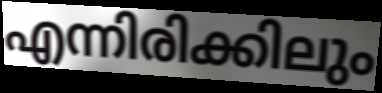
എന്നിരിക്കിലും